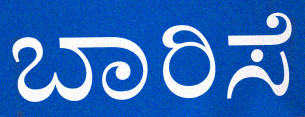
ಬಾರಿಸೆ